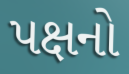
પક્ષનો